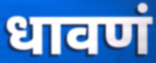
धावणं